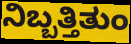
ನಿಬ್ಬತ್ತಿತುಂ